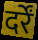
दर्रें